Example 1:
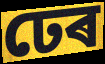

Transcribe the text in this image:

ঢেৰ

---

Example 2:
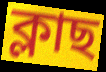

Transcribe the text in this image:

ক্লাছ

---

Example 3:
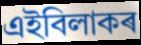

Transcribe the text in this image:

এইবিলাকৰ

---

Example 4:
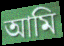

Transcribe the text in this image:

আমি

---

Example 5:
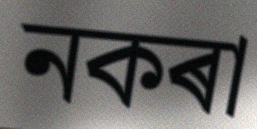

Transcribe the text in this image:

নকৰা